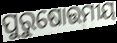
ପୁରୁଷୋତ୍ତମୀୟ